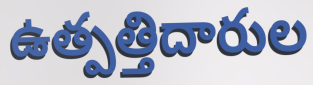
ఉత్పత్తిదారుల